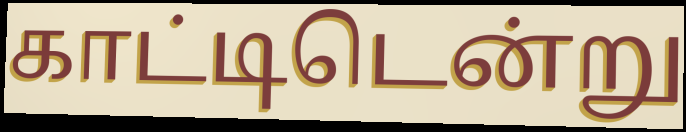
காட்டிடென்று